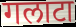
गलाटा